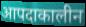
आपदाकालीन